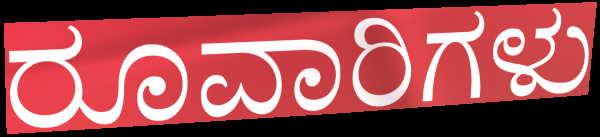
ರೂವಾರಿಗಳು